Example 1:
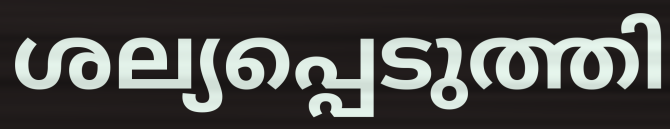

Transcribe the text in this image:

ശല്യപ്പെടുത്തി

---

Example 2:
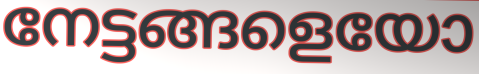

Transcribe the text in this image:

നേട്ടങ്ങളെയോ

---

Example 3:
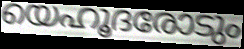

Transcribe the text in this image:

യെഹൂദരോടും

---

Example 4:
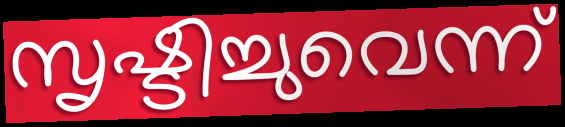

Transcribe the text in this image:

സൃഷ്ടിച്ചുവെന്ന്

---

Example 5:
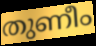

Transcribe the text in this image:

തുണീം